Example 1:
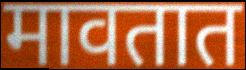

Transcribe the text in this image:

मावतात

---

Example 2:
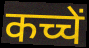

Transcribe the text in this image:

कच्चें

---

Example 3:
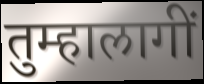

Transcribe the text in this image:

तुम्हालागीं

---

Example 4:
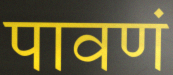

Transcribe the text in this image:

पावणं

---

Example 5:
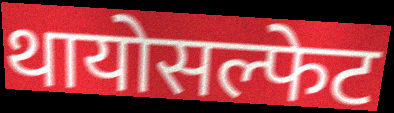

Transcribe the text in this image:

थायोसल्फेट